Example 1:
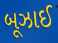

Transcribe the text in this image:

બૂઝાઈ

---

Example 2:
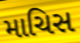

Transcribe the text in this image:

માચિસ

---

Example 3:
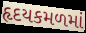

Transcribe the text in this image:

હૃદયકમળમાં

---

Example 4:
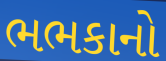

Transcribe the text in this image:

ભભકાનો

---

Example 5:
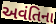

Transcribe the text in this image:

અવંતિના